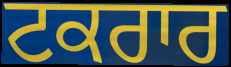
ਟਕਰਾਰ